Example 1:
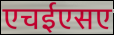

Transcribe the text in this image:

एचईएसए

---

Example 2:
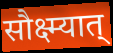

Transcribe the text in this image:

सौक्ष्म्यात्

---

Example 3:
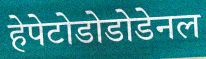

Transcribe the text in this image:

हेपेटोडोडोडेनल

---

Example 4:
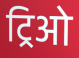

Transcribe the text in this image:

ट्रिओ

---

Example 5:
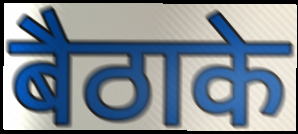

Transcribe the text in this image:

बैठाके